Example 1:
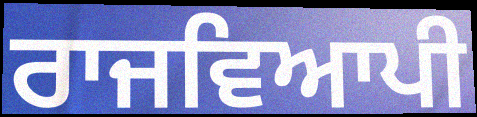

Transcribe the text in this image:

ਰਾਜਵਿਆਪੀ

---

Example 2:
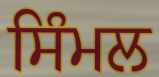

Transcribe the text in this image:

ਸਿੰਮਲ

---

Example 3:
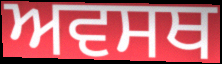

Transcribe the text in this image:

ਅਵਸਥ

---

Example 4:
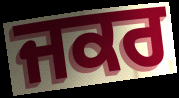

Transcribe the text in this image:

ਜਕਰ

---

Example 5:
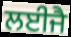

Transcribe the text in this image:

ਲਈਜੈ